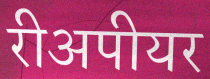
रीअपीयर